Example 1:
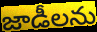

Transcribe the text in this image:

జాడీలను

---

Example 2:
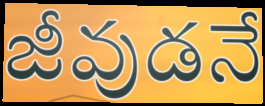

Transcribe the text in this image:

జీవుడనే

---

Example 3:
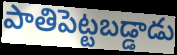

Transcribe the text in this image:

పాతిపెట్టబడ్డాడు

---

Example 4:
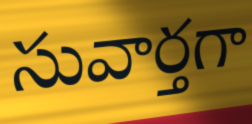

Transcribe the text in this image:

సువార్తగా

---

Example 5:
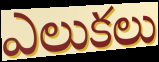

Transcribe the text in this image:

ఎలుకలు